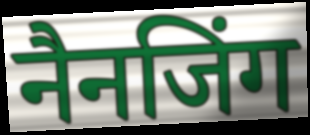
नैनजिंग